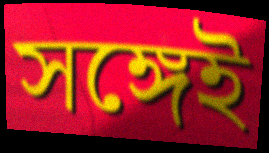
সঙ্গেই